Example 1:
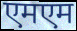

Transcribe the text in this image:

एमएम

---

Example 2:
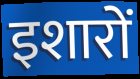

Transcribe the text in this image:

इशारों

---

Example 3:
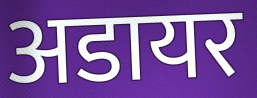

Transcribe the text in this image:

अडायर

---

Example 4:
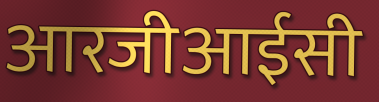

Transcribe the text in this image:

आरजीआईसी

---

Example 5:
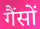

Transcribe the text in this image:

गैंसों